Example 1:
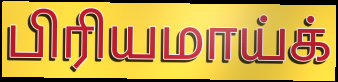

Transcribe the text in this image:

பிரியமாய்க்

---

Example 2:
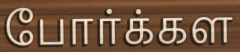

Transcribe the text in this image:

போர்க்கள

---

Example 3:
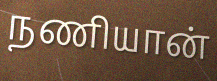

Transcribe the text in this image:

நணியான்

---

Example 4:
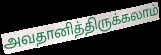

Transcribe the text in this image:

அவதானித்திருக்கலாம்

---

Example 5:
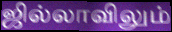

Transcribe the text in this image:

ஜில்லாவிலும்